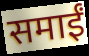
समाईं